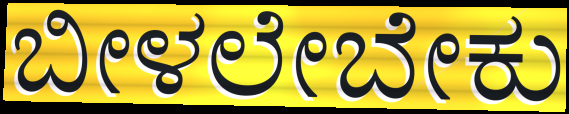
ಬೀಳಲೇಬೇಕು